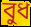
বুধ